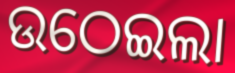
ଉଠେଇଲା